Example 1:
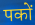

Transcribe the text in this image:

पकों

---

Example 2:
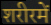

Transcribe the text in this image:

शरीरमें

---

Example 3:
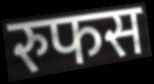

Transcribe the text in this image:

रुफस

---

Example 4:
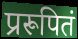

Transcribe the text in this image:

प्ररूपितं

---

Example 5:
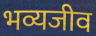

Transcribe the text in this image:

भव्यजीव